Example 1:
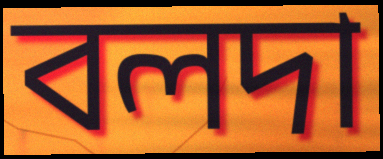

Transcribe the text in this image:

বলদা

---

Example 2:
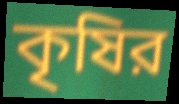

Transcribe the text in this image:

কৃষির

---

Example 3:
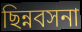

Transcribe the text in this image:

ছিন্নবসনা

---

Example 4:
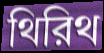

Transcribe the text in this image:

থিরিথ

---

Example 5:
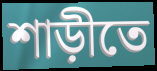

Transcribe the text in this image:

শাড়ীতে